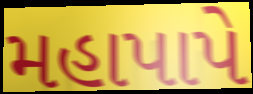
મહાપાપે